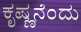
ಕೃಷ್ಣನೆಂದು